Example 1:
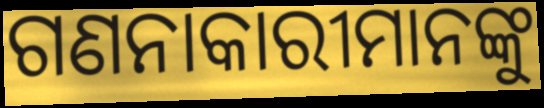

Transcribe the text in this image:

ଗଣନାକାରୀମାନଙ୍କୁ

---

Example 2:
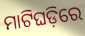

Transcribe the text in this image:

ମାଟିଘଡ଼ିରେ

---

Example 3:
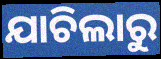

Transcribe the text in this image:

ଯାଚିଲାରୁ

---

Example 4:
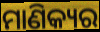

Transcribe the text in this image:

ମାଣିକ୍ୟର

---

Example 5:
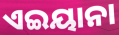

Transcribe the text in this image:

ଏଇୟାନା